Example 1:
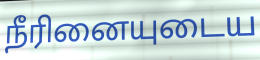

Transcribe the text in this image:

நீரினையுடைய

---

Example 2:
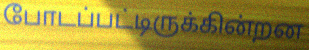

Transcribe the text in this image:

போடப்பட்டிருக்கின்றன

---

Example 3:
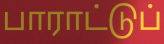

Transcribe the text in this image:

பாராட்டுப்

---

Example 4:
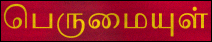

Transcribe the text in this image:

பெருமையுள்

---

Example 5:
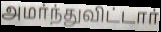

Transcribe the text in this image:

அமர்ந்துவிட்டார்